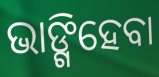
ଭାଙ୍ଗିହେବା